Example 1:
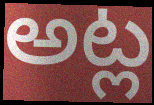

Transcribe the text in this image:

అట్ల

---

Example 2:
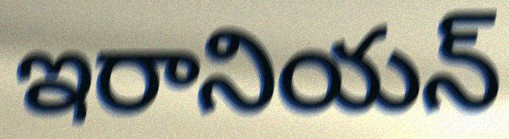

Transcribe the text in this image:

ఇరానియన్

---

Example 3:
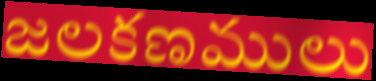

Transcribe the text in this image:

జలకణములు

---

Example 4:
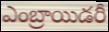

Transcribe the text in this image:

ఎంబ్రాయిడరీ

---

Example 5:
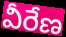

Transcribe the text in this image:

వీరేణ